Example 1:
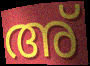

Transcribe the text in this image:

അ്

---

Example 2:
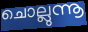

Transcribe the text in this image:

ചൊല്ലുന്നൂ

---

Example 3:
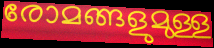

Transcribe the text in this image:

രോമങ്ങളുമുള്ള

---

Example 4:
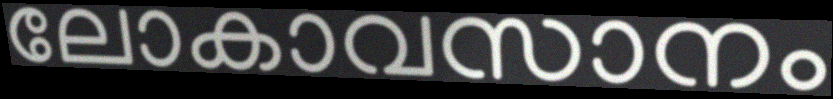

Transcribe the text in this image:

ലോകാവസാനം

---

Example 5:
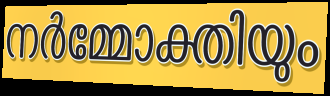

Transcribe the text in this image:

നർമ്മോക്തിയും